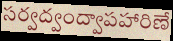
సర్వద్వంద్వాపహారిణే